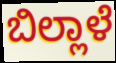
ಬಿಲ್ಲಾಳೆ